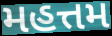
મહત્તમ